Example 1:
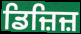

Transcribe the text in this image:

ਡਿਜ਼ਿਜ਼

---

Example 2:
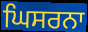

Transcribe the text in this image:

ਘਿਸਰਨਾ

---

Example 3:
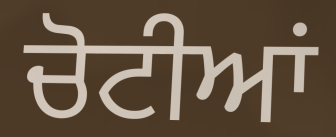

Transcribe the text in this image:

ਚੋਟੀਆਂ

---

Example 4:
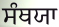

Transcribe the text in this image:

ਸੰਥਯਾ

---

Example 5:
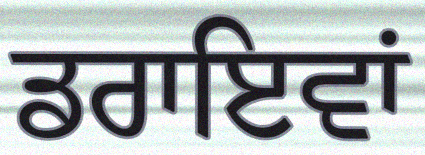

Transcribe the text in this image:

ਡਰਾਇਵਾਂ